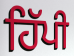
ਹਿੱਪੀ